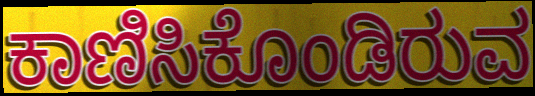
ಕಾಣಿಸಿಕೊಂಡಿರುವ